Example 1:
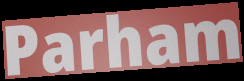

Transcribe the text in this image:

Parham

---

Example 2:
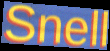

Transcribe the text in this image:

Snell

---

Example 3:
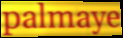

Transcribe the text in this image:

palmaye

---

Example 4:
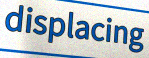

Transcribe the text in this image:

displacing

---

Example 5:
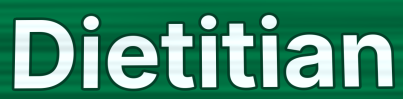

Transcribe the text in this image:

Dietitian